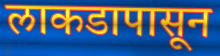
लाकडापासून